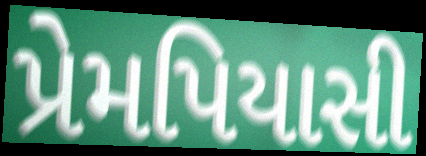
પ્રેમપિયાસી